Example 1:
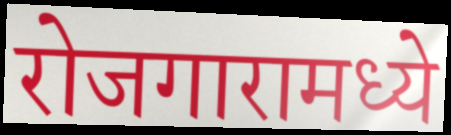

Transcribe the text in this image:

रोजगारामध्ये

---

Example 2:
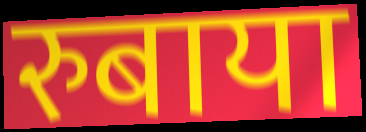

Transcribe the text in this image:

रुबाया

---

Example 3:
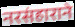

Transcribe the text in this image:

नरसंहाराने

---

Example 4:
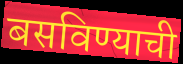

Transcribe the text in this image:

बसविण्याची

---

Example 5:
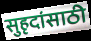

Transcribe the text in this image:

सुहृदांसाठी